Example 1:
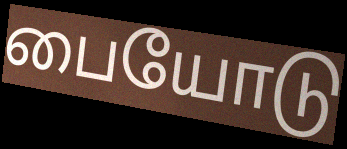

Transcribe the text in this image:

பையோடு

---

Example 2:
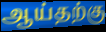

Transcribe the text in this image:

ஆய்தற்கு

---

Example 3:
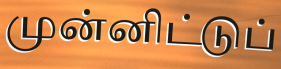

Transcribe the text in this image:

முன்னிட்டுப்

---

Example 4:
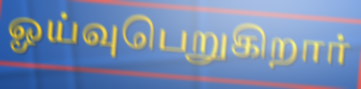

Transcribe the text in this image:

ஓய்வுபெறுகிறார்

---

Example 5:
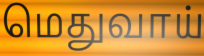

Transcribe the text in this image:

மெதுவாய்